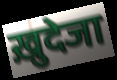
ख़ुदेजा